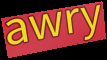
awry